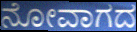
ನೋವಾಗದ